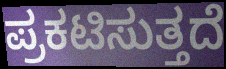
ಪ್ರಕಟಿಸುತ್ತದೆ